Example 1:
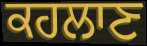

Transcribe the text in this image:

ਕਹਲਾਣ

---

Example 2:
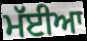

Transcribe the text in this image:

ਮੱਈਆ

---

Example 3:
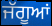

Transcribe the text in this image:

ਜੱਗੂਆਂ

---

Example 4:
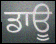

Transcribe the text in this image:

ਡਾਊ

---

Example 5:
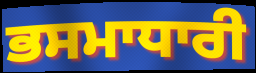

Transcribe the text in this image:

ਭਸਮਾਧਾਰੀ